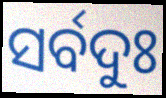
ସର୍ବଦୁଃ